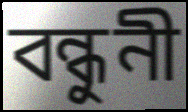
বন্ধুনী